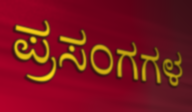
ಪ್ರಸಂಗಗಳ